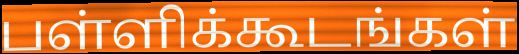
பள்ளிக்கூடங்கள்